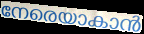
നേരെയാകാൻ